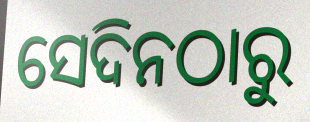
ସେଦିନଠାରୁ